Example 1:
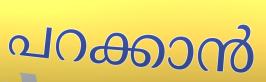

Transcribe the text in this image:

പറക്കാൻ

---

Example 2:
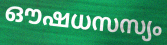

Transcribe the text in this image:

ഔഷധസസ്യം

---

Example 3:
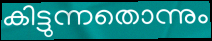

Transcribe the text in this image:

കിട്ടുന്നതൊന്നും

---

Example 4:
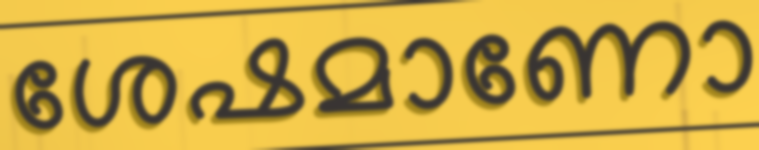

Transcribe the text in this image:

ശേഷമാണോ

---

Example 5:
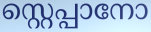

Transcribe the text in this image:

സ്റ്റെപ്പാനോ